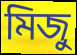
মিজু